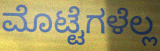
ಮೊಟ್ಟೆಗಳೆಲ್ಲ